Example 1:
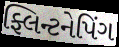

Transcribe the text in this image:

ફ્લિન્ટનેપિંગ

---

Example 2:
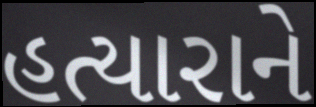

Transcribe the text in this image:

હત્યારાને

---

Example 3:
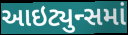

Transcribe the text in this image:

આઇટ્યુન્સમાં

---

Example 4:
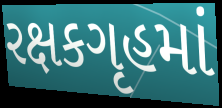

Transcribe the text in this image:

રક્ષકગૃહમાં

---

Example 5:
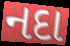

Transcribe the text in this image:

નદા